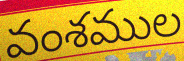
వంశముల